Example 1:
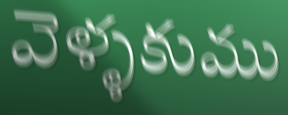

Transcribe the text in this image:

వెళ్ళకుము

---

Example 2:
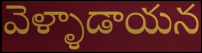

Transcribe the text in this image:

వెళ్ళాడాయన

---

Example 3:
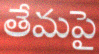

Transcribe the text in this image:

తేమపై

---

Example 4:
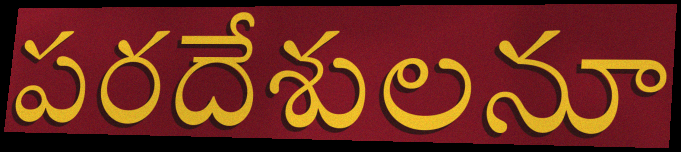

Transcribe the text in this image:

పరదేశులనూ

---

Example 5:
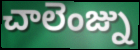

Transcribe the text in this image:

చాలెంజ్ను